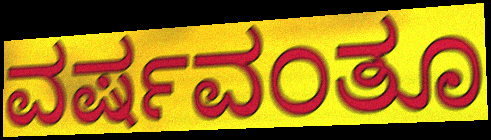
ವರ್ಷವಂತೂ